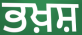
ਭਖ਼ਸ਼